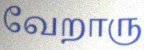
வேறாரு